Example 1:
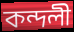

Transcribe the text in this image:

কন্দলী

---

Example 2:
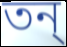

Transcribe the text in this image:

তন্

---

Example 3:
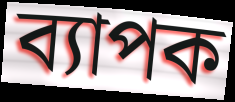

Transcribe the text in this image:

ব্যাপক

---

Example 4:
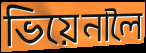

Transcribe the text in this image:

ভিয়েনালৈ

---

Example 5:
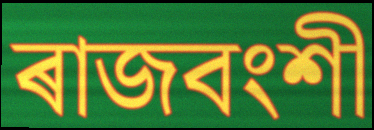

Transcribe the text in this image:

ৰাজবংশী